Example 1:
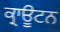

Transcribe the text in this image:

ਕ੍ਰਾਊਟਨ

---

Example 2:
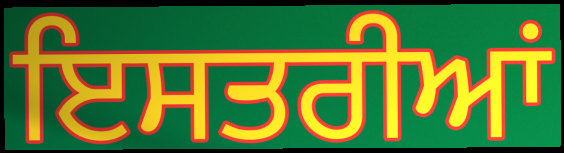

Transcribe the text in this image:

ਇਸਤਰੀਆਂ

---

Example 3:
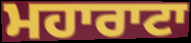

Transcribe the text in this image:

ਮਹਾਰਾਟਾ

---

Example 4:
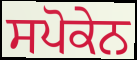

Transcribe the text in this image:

ਸਪੋਕੇਨ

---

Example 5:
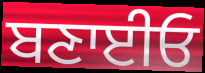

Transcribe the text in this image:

ਬਣਾਈਓ